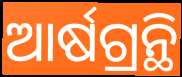
ଆର୍ଷଗ୍ରନ୍ଥି